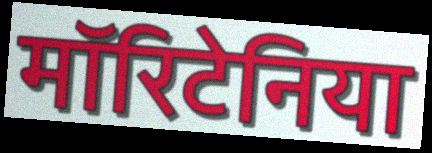
मॉरिटेनिया